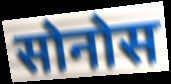
सोनोस